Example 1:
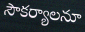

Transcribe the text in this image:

సౌకర్యాలనూ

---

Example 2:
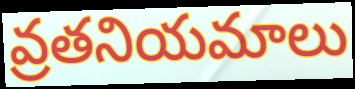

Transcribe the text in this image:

వ్రతనియమాలు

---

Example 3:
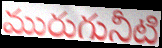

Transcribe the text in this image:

మురుగునీటి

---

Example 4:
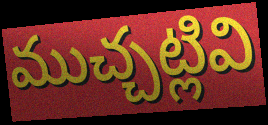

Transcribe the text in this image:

ముచ్చట్లివి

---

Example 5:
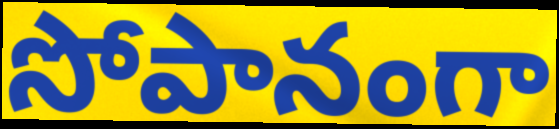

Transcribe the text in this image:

సోపానంగా